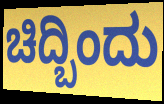
ಚಿದ್ಬಿಂದು